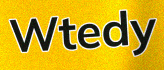
Wtedy